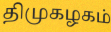
திமுகழகம்